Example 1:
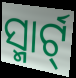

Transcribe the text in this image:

ସ୍ମାର୍ଟ୍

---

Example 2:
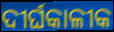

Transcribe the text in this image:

ଦୀର୍ଘକାଳୀକ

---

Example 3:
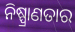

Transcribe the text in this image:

ନିଷ୍ପ୍ରାଣତାର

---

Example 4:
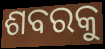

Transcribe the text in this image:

ଶବରକୁ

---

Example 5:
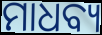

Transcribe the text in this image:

ମାଧବ୍ୟ